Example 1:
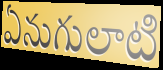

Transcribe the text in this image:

ఏనుగులాటి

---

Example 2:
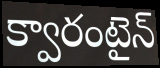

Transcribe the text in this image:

క్వారంటైన్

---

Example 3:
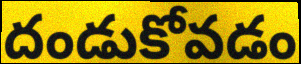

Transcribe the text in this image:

దండుకోవడం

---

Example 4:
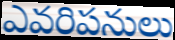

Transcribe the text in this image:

ఎవరిపనులు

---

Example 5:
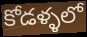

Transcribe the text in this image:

కోడళ్ళలో